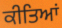
ਕੀਤਿਆਂ